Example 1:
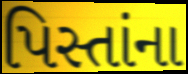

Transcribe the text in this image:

પિસ્તાંના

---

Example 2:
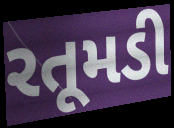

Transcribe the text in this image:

રતૂમડી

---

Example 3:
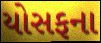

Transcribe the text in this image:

યોસફના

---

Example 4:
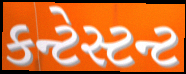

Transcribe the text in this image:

કન્ટેસ્ટન્ટ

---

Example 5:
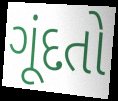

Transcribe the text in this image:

ગૂંદતો